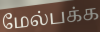
மேல்பக்க